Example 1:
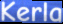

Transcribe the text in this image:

Kerla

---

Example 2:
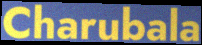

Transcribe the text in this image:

Charubala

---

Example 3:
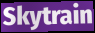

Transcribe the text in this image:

Skytrain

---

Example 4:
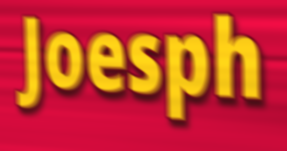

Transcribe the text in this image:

Joesph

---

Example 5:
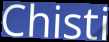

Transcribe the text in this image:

Chisti